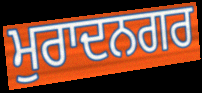
ਮੁਰਾਦਨਗਰ